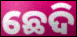
ଛେଦି